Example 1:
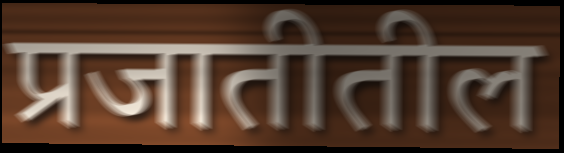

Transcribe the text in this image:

प्रजातीतील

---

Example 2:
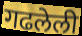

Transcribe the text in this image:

गढलेली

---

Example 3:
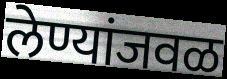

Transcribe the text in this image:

लेण्यांजवळ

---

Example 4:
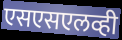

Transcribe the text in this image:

एसएसएलव्ही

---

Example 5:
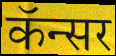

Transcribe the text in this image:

कॅन्सर